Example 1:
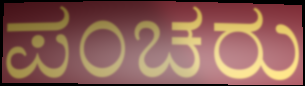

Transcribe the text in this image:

ಪಂಚರು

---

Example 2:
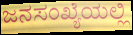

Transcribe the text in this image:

ಜನಸಂಖ್ಯೆಯಲ್ಲಿ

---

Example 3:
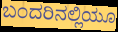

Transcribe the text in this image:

ಬಂದರಿನಲ್ಲಿಯೂ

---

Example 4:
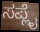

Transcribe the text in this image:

ಸಪ್ಲೈ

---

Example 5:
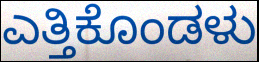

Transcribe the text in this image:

ಎತ್ತಿಕೊಂಡಳು